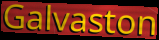
Galvaston